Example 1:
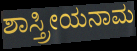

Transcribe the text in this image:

ಶಾಸ್ತ್ರೀಯನಾಮ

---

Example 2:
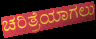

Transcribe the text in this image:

ಚರಿತ್ರೆಯಾಗಲು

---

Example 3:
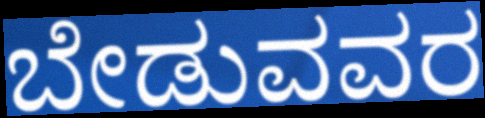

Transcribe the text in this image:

ಬೇಡುವವರ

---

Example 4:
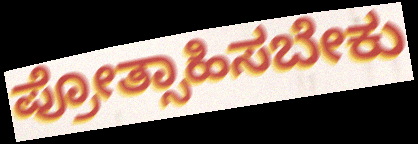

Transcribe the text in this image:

ಪ್ರೋತ್ಸಾಹಿಸಬೇಕು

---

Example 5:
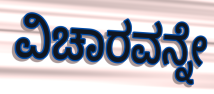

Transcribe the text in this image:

ವಿಚಾರವನ್ನೇ